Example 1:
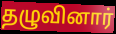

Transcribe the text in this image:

தழுவினார்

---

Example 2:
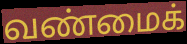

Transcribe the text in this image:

வண்மைக்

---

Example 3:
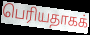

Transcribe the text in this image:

பெரியதாகக்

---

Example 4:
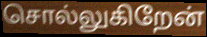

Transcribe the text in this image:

சொல்லுகிறேன்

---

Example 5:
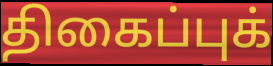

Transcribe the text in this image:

திகைப்புக்